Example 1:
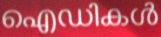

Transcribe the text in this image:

ഐഡികൾ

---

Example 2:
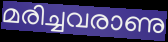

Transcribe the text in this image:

മരിച്ചവരാണു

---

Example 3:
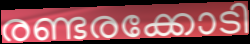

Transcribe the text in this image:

രണ്ടരക്കോടി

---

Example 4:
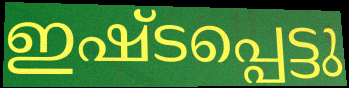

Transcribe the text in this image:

ഇഷ്ടപ്പെട്ടു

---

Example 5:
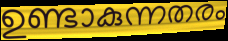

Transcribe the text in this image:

ഉണ്ടാകുന്നതരം